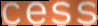
cess